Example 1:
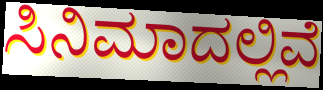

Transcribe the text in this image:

ಸಿನಿಮಾದಲ್ಲಿವೆ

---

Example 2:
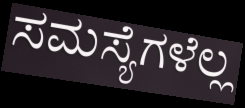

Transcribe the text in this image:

ಸಮಸ್ಯೆಗಳೆಲ್ಲ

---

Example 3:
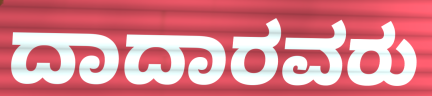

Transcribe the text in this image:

ದಾದಾರವರು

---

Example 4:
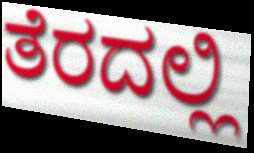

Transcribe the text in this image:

ತೆರದಲ್ಲಿ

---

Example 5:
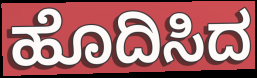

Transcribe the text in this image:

ಹೊದಿಸಿದ